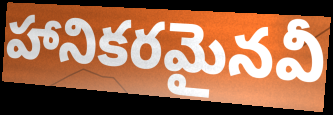
హానికరమైనవీ